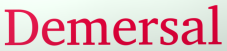
Demersal